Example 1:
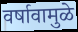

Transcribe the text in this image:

वर्षावामुळे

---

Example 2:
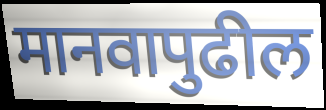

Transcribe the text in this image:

मानवापुढील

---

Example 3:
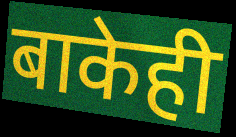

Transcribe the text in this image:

बाकेही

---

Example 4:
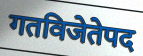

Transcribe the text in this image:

गतविजेतेपद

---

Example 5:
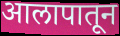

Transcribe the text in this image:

आलापातून